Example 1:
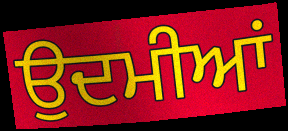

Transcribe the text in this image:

ਉਦਮੀਆਂ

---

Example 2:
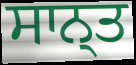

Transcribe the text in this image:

ਸਾਨ੍ਤ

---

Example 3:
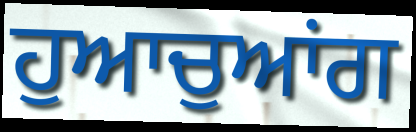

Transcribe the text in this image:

ਹੁਆਚੁਆਂਗ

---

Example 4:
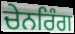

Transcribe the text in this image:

ਚੇਨਰਿੰਗ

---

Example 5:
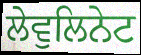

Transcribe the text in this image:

ਲੇਵੁਲਿਨੇਟ